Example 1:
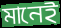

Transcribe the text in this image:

মানেই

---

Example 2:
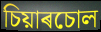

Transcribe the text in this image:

চিয়াৰচোল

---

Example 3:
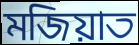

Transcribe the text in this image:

মজিয়াত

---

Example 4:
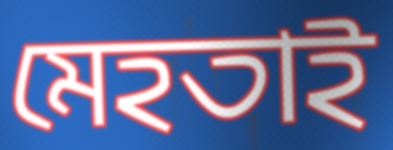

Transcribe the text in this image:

মেহতাই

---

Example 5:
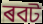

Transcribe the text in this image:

ৰবট